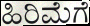
ಹಿರಿಮೆಗೆ